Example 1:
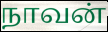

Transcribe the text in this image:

நாவன்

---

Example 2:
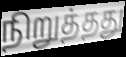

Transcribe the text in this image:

நிறுத்தது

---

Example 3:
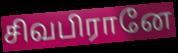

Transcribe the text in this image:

சிவபிரானே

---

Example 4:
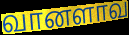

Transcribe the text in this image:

வானளாவ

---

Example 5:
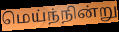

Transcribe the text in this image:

மெய்ந்நின்று